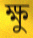
ক্ষু